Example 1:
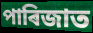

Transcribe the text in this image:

পাৰিজাত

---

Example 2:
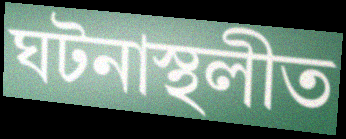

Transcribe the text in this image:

ঘটনাস্থলীত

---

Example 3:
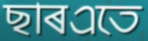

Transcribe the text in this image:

ছাৰএতে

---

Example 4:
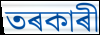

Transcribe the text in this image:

তৰকাৰী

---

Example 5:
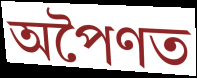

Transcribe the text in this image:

অপৈণত